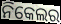
ନିକେଲର